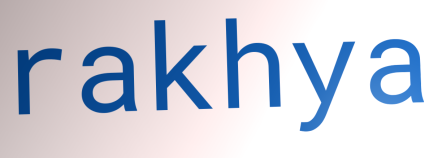
rakhya